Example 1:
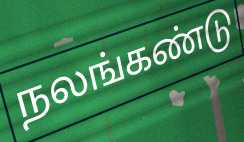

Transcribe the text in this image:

நலங்கண்டு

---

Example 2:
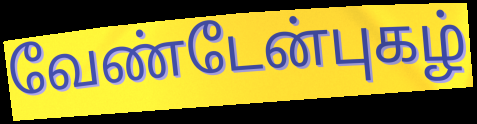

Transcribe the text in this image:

வேண்டேன்புகழ்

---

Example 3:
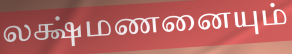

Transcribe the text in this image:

லக்ஷ்மணனையும்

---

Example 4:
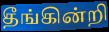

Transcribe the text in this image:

தீங்கின்றி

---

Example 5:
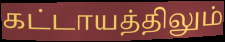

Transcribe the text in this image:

கட்டாயத்திலும்